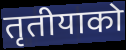
तृतीयाको